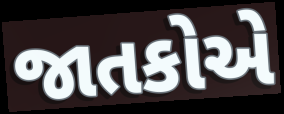
જાતકોએ